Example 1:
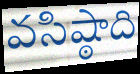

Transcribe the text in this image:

వసిష్ఠాది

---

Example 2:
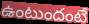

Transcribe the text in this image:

ఉంటుందంటే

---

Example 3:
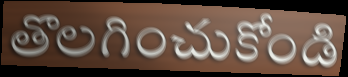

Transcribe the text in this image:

తొలగించుకోండి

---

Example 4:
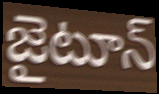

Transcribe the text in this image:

జైటూన్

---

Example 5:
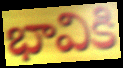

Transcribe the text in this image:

భావికి